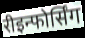
रीइन्फोर्सिंग